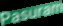
Pasuram